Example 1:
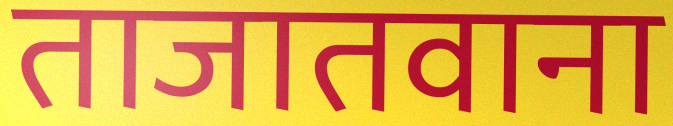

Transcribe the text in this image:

ताजातवाना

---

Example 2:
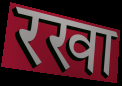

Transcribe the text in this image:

रखा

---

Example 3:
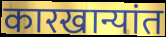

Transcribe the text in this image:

कारखान्यांत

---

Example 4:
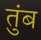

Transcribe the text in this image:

तुंब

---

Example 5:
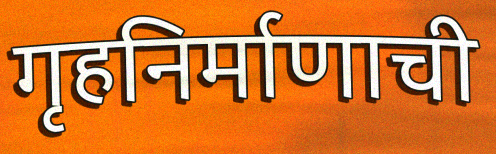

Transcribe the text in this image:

गृहनिर्माणाची